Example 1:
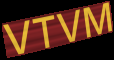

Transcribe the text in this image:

VTVM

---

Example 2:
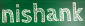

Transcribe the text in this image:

nishank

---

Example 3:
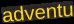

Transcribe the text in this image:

adventu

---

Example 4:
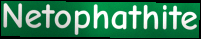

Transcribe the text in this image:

Netophathite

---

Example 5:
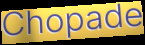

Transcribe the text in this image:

Chopade